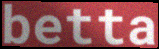
betta